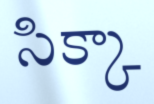
సిక్కా